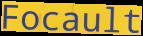
Focault